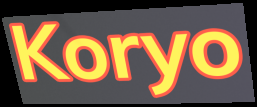
Koryo